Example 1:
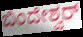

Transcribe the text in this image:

ಬಿಂದೇಶ್ವರ್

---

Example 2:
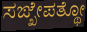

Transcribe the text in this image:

ಸಙ್ಖೇಪತ್ಥೋ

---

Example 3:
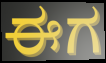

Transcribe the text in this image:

ಈಗ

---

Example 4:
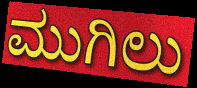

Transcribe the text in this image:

ಮುಗಿಲು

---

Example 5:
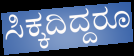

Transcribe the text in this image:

ಸಿಕ್ಕದಿದ್ದರೂ